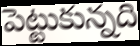
పెట్టుకున్నది